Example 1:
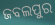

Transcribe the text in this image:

ଜବଲପୁର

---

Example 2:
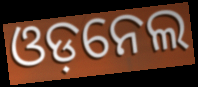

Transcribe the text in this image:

ଓଡ଼ନେଲ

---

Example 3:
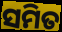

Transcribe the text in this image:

ସମିତ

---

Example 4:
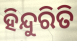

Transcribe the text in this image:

ହିନ୍ଦୁରିତି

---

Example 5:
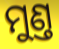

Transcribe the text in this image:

ମୁଣ୍ତ